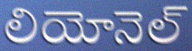
లియోనెల్